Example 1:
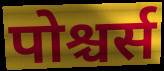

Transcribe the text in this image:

पोश्चर्स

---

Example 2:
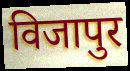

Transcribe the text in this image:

विजापुर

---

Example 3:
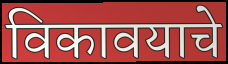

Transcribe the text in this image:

विकावयाचे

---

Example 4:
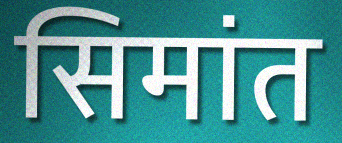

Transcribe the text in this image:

सिमांत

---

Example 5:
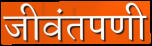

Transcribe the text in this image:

जीवंतपणी